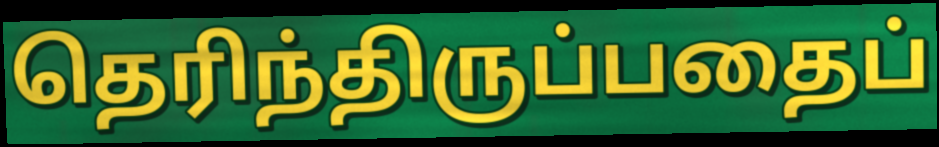
தெரிந்திருப்பதைப்